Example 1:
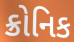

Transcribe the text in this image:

ક્રોનિક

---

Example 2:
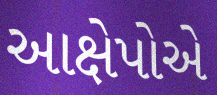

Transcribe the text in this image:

આક્ષેપોએ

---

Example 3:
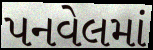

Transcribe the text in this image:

પનવેલમાં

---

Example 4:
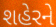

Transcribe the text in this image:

શહેરને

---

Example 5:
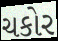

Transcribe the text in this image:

ચકોર